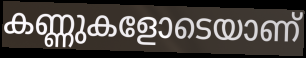
കണ്ണുകളോടെയാണ്